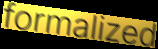
formalized